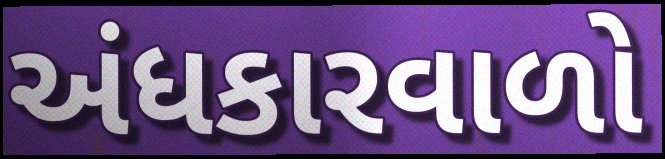
અંધકારવાળો